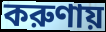
করুণায়